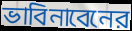
ভাবিনাবেনের